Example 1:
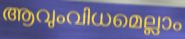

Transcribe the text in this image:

ആവുംവിധമെല്ലാം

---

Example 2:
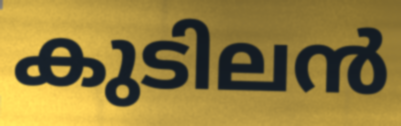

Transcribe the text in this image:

കുടിലൻ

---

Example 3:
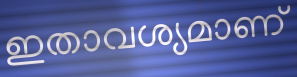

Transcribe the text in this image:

ഇതാവശ്യമാണ്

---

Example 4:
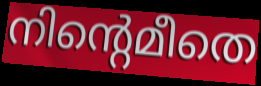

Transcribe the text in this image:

നിന്റെമീതെ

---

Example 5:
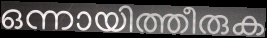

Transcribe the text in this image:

ഒന്നായിത്തീരുക